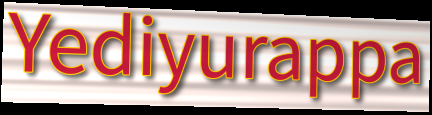
Yediyurappa